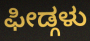
ಫೀಡ್ಗಳು